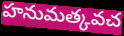
హనుమత్కవచ